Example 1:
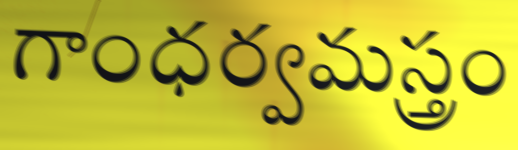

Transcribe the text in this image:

గాంధర్వమస్త్రం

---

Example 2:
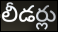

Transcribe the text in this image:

లీడర్లు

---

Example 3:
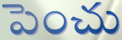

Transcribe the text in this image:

పెంచు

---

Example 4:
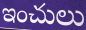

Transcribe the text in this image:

ఇంచులు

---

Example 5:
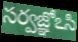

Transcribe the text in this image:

సర్వజ్ఞోఽసి